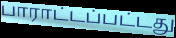
பாராட்டப்பட்டது